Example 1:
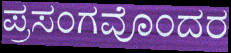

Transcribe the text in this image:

ಪ್ರಸಂಗವೊಂದರ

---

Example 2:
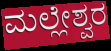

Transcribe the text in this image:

ಮಲ್ಲೇಶ್ವರ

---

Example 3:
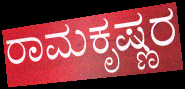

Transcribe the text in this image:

ರಾಮಕೃಷ್ಣರ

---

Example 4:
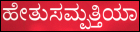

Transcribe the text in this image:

ಹೇತುಸಮ್ಪತ್ತಿಯಾ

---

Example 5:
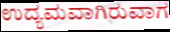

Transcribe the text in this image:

ಉದ್ಯಮವಾಗಿರುವಾಗ